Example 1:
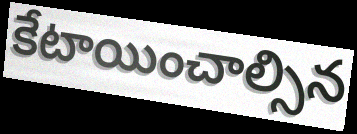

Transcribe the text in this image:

కేటాయించాల్సిన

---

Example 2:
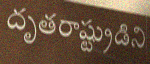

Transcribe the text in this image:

దృతరాష్ట్రుడిని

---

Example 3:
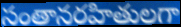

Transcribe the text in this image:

సంతానరహితులగా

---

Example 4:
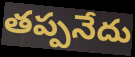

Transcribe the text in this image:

తప్పనేదు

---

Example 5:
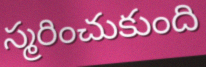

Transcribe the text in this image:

స్మరించుకుంది